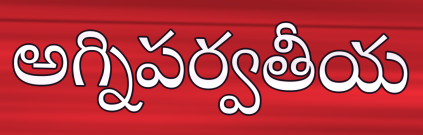
అగ్నిపర్వతీయ